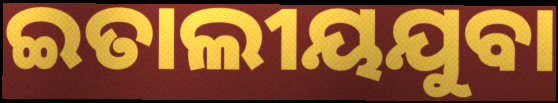
ଇତାଲୀୟଯୁବା